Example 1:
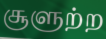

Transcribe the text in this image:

சூளுற்ற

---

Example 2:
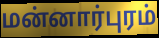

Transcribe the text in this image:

மன்னார்புரம்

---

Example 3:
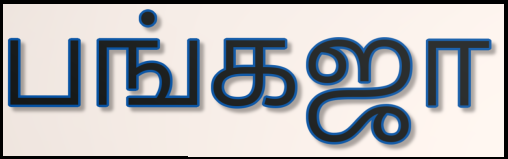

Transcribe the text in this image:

பங்கஜா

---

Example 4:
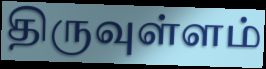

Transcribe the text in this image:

திருவுள்ளம்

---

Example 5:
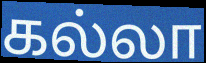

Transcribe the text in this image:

கல்லா